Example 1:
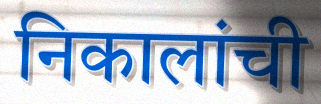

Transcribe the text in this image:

निकालांची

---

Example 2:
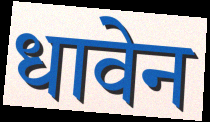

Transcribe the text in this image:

धावेन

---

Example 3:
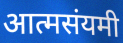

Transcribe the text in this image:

आत्मसंयमी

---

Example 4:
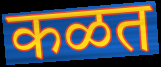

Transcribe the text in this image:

कळत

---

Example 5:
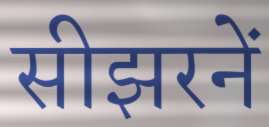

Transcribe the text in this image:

सीझरनें